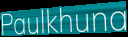
Paulkhuna